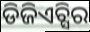
ଡିଜିଏଚ୍ସିର